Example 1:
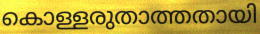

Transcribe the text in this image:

കൊള്ളരുതാത്തതായി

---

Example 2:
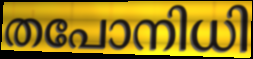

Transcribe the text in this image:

തപോനിധി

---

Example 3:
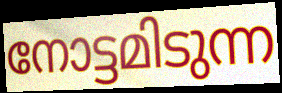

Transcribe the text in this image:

നോട്ടമിടുന്ന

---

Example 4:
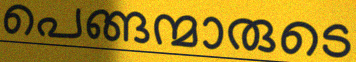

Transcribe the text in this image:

പെങ്ങന്മാരുടെ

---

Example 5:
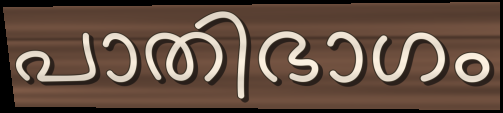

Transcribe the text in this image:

പാതിഭാഗം